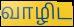
வாழிட